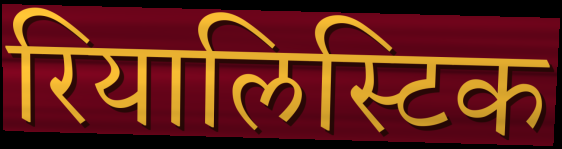
रियालिस्टिक